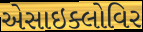
એસાઇક્લોવિર